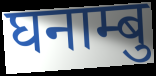
घनाम्बु